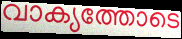
വാക്യത്തോടെ